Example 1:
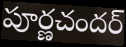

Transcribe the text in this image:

పూర్ణచందర్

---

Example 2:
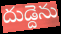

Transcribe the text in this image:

దుడ్దెను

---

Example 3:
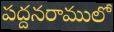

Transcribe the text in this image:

పద్దనరాములో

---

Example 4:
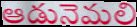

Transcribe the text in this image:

ఆడునెమలి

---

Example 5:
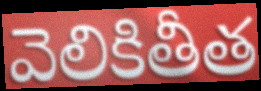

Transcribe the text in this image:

వెలికితీత